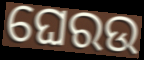
ଘେରଉ